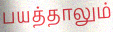
பயத்தாலும்